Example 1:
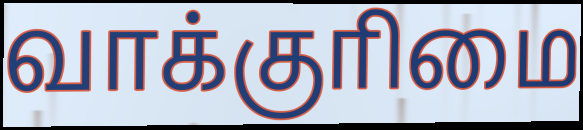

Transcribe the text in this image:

வாக்குரிமை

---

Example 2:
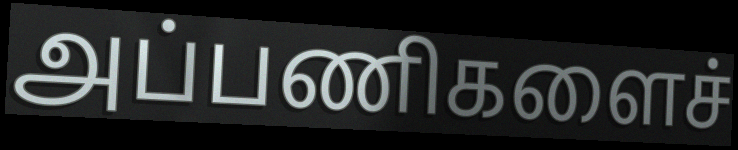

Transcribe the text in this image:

அப்பணிகளைச்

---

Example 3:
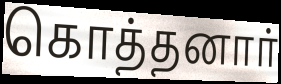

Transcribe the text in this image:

கொத்தனார்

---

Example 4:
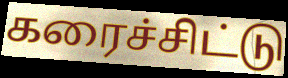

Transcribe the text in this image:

கரைச்சிட்டு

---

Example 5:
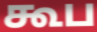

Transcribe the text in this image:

கூப